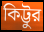
কিট্টুর